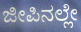
ಜೀಪಿನಲ್ಲೇ